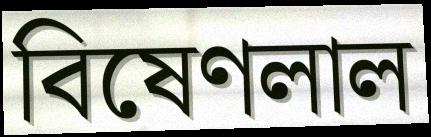
বিষেণলাল